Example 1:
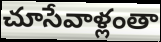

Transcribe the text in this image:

చూసేవాళ్లంతా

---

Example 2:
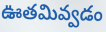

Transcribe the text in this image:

ఊతమివ్వడం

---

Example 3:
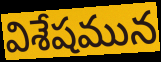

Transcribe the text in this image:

విశేషమున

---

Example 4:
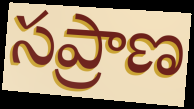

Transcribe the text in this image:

సప్రాణ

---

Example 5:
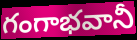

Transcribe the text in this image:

గంగాభవానీ